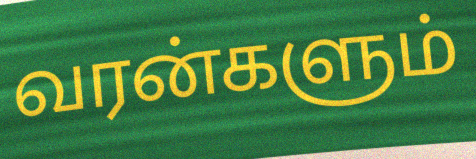
வரன்களும்